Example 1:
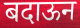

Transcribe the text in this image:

बदाऊन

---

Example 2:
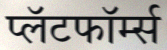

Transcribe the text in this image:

प्लॅटफॉर्म्स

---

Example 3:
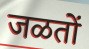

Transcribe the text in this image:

जळतों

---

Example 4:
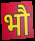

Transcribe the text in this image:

भौ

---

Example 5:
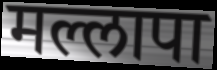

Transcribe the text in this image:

मल्लापा